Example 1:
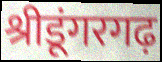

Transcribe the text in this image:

श्रीडूंगरगढ़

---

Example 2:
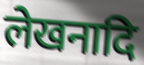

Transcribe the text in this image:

लेखनादि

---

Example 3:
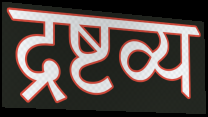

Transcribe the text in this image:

द्रष्टव्य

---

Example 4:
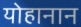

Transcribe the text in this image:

योहानान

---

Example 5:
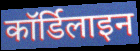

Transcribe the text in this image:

कॉर्डिलाइन